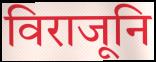
विराजूनि